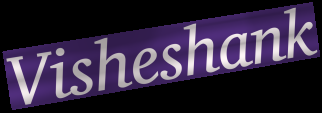
Visheshank